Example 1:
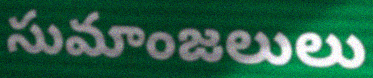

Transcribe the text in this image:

సుమాంజలులు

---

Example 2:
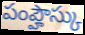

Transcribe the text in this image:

పంప్హౌస్కు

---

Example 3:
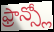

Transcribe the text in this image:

ఫ్రాన్స్లో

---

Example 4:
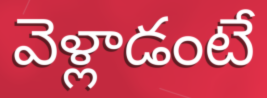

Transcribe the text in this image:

వెళ్లాడంటే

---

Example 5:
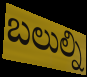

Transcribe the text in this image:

బలుల్ని